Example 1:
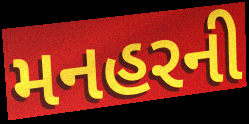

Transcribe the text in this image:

મનહરની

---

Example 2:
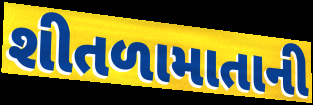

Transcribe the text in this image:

શીતળામાતાની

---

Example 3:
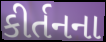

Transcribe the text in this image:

કીર્તનના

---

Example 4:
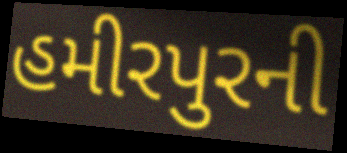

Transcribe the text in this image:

હમીરપુરની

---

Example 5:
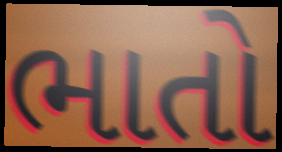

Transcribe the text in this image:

ભાતો